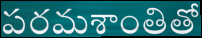
పరమశాంతితో